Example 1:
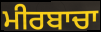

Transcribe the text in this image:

ਮੀਰਬਾਚਾ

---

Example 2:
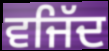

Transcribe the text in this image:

ਵਜਿੱਦ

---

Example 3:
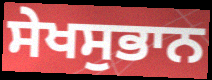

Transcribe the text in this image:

ਸੇਖਸੁਭਾਨ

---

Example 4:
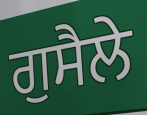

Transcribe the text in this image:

ਗੁਸੈਲੇ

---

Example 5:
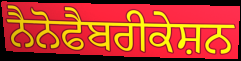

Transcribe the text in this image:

ਨੈਨੋਫੈਬਰੀਕੇਸ਼ਨ